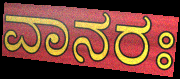
ವಾನರಃ